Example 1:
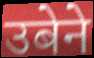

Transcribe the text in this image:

उबेने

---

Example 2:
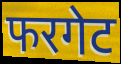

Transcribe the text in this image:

फरगेट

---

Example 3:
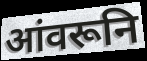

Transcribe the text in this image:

आंवरूनि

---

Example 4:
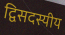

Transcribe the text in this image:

द्विसदस्यीय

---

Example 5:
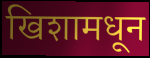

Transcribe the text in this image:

खिशामधून